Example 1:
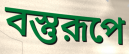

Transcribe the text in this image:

বস্তুরূপে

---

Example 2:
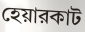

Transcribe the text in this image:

হেয়ারকাট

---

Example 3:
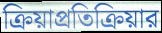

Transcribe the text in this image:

ক্রিয়াপ্রতিক্রিয়ার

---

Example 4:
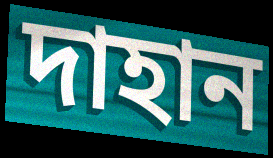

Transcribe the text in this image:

দাহান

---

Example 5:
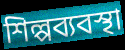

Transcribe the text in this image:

শিল্পব্যবস্থা